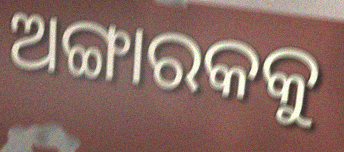
ଅଙ୍ଗାରକକୁ